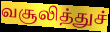
வசூலித்துச்